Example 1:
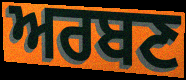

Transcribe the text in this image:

ਅਰਬਣ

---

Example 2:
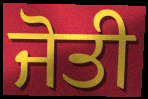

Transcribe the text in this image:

ਜੋਤੀ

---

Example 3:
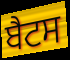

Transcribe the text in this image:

ਬੈਟਸ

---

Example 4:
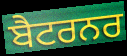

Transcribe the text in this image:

ਬੈਟਰਨਰ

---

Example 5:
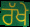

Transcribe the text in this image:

ਰੱਖੇ